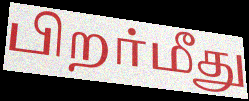
பிறர்மீது